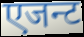
एजन्ट